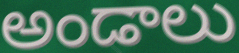
అండాలు